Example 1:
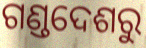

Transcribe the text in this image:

ଗଣ୍ଡଦେଶରୁ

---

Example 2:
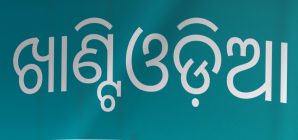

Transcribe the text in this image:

ଖାଣ୍ଟିଓଡ଼ିଆ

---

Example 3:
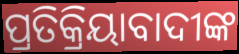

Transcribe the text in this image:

ପ୍ରତିକ୍ରିୟାବାଦୀଙ୍କ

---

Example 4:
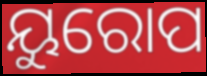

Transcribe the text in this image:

ୟୁରୋପ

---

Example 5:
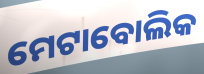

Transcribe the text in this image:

ମେଟାବୋଲିକ